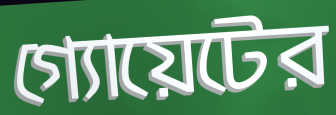
গ্যোয়েটের